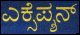
ಎಕ್ಸೆಪ್ಶನ್